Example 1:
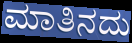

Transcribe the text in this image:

ಮಾತಿನದು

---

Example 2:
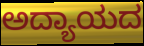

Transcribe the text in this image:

ಅದ್ಯಾಯದ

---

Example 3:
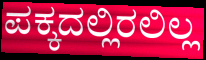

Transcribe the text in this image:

ಪಕ್ಕದಲ್ಲಿರಲಿಲ್ಲ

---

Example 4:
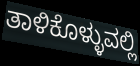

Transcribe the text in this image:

ತಾಳಿಕೊಳ್ಳುವಲ್ಲಿ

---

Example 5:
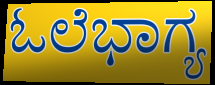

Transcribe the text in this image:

ಓಲೆಭಾಗ್ಯ